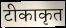
टीकाकृत